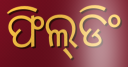
ଫିଲ୍‌ଡିଂ